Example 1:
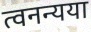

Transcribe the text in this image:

त्वनन्यया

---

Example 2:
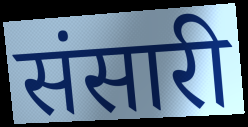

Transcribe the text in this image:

संसारी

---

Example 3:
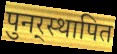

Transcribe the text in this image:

पुनर्स्थापित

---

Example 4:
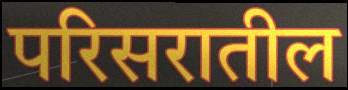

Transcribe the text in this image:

परिसरातील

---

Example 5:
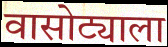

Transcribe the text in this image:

वासोट्याला